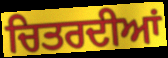
ਚਿਤਰਦੀਆਂ